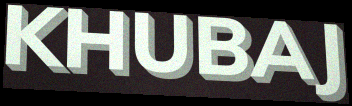
KHUBAJ